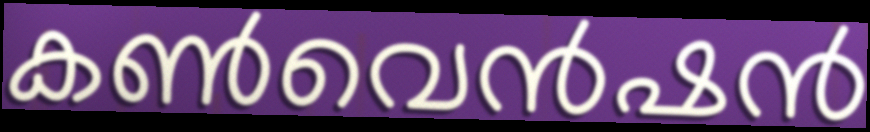
കൺവെൻഷൻ